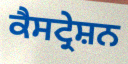
ਕੈਸਟ੍ਰੇਸ਼ਨ